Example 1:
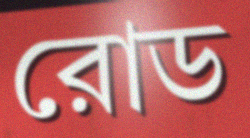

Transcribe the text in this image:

রোড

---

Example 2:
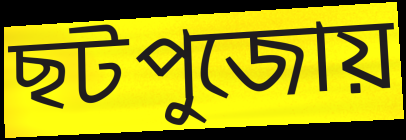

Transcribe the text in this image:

ছটপুজোয়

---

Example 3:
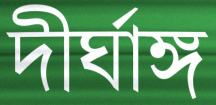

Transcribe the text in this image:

দীর্ঘাঙ্গ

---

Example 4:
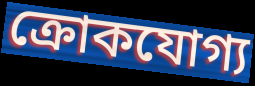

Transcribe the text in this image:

ক্রোকযোগ্য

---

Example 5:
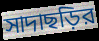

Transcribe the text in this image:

সাদাছড়ির